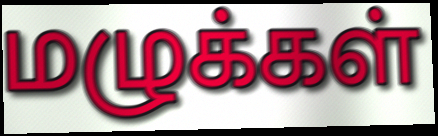
மழுக்கள்